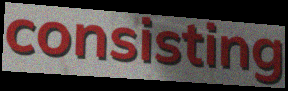
consisting